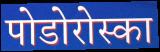
पोडोरोस्का